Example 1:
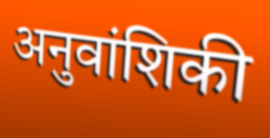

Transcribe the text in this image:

अनुवांशिकी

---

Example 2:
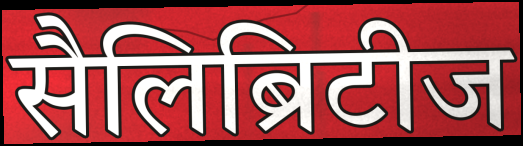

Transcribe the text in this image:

सैलिब्रिटीज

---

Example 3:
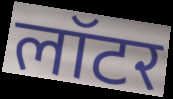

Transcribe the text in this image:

लॉटर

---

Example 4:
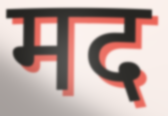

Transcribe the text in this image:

मद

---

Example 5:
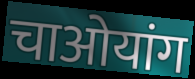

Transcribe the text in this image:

चाओयांग